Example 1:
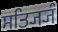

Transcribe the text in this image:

ਸਤ੍ਯ੍ਯਿੰ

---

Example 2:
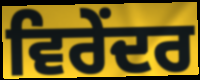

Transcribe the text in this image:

ਵਿਰੇਂਦਰ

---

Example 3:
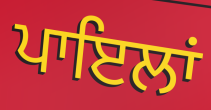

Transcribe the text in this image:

ਪਾਇਲਾਂ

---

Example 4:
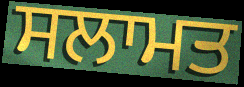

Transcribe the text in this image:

ਸਲਾਮਤ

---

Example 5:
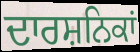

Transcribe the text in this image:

ਦਾਰਸ਼ਨਿਕਾਂ